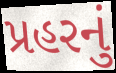
પ્રહરનું